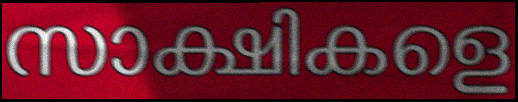
സാക്ഷികളെ